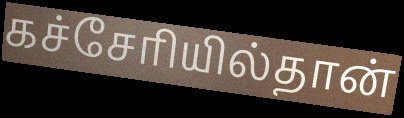
கச்சேரியில்தான்